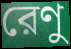
রেণু